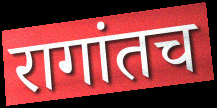
रागांतच